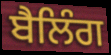
ਬੈਲਿੰਗ